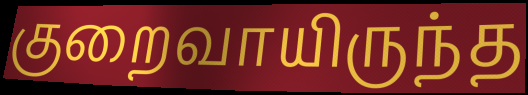
குறைவாயிருந்த